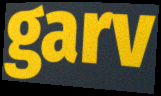
garv